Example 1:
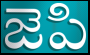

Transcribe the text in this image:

జెపి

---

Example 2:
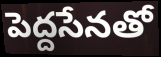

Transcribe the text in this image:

పెద్దసేనతో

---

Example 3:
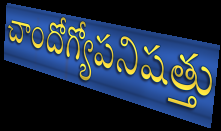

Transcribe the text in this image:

చాందోగ్యోపనిషత్తు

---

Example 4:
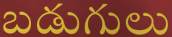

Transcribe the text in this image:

బడుగులు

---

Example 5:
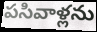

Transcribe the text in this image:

పసివాళ్లను